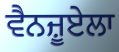
ਵੈਨਜ਼ੂਏਲਾ